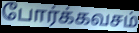
போர்க்கவசம்